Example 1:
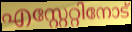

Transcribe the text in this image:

എസ്റ്റേറ്റിനോട്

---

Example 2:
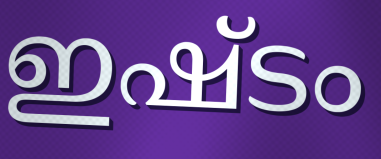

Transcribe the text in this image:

ഇഷ്ടം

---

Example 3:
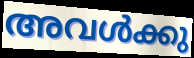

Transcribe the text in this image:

അവൾക്കു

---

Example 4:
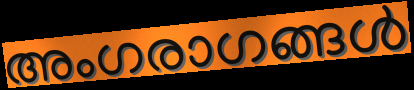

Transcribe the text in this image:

അംഗരാഗങ്ങൾ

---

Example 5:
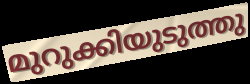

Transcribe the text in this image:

മുറുക്കിയുടുത്തു